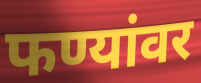
फण्यांवर